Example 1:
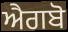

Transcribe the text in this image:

ਐਗਬੋ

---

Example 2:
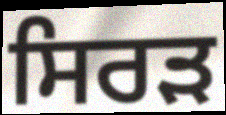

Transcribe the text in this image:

ਸਿਰੜ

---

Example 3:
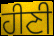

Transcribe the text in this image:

ਹੀਣੀ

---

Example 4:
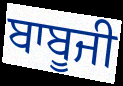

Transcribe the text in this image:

ਬਾਬੂਜੀ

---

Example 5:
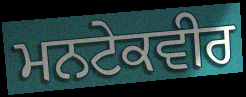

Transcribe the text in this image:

ਮਨਟੇਕਵੀਰ